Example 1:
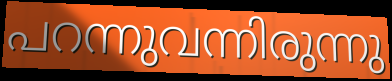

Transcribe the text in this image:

പറന്നുവന്നിരുന്നു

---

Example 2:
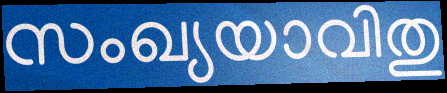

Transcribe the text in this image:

സംഖ്യയാവിതു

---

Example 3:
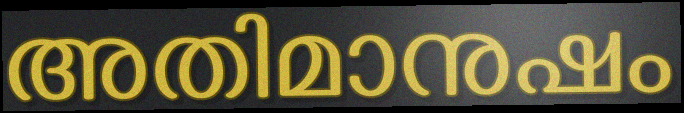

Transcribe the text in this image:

അതിമാനുഷം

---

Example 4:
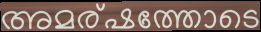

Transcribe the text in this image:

അമര്ഷത്തോടെ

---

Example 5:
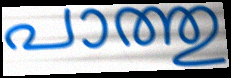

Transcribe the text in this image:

പാത്തു